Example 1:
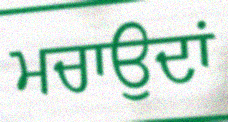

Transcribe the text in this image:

ਮਚਾਉਦਾਂ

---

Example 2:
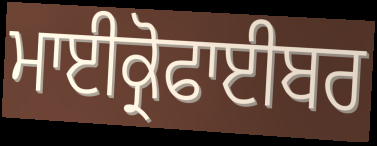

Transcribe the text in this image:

ਮਾਈਕ੍ਰੋਫਾਈਬਰ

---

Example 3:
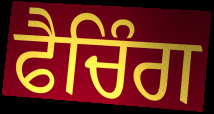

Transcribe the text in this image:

ਫੈਚਿੰਗ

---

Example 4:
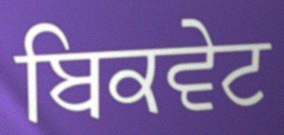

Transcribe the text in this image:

ਬਿਕਵੇਟ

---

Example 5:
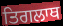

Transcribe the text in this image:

ਤਿਗਲਾਥ